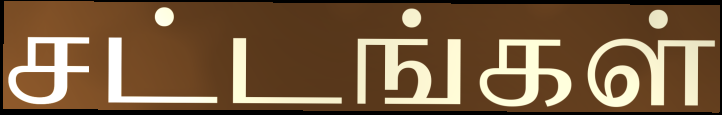
சட்டங்கள்